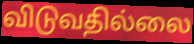
விடுவதில்லை